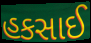
હકસાઈ